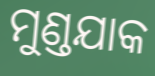
ମୁଣ୍ଡଯାକ